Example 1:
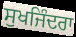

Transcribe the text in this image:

ਸੁਖਜਿੰਦਰਾ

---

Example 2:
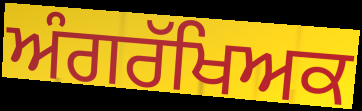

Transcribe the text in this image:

ਅੰਗਰੱਖਿਅਕ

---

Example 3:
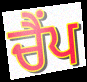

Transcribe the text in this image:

ਚੈਂਪ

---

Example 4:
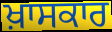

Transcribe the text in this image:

ਖ਼ਾਸਕਾਰ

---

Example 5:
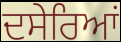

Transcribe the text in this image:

ਦਸੇਰਿਆਂ